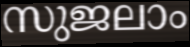
സുജലാം